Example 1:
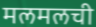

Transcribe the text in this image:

मलमलची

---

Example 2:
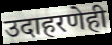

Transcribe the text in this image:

उदाहरणेही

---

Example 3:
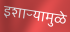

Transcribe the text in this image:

इशाऱ्यामुळे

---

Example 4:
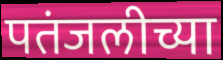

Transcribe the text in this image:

पतंजलीच्या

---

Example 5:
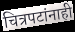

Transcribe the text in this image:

चित्रपटांनाही